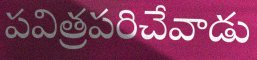
పవిత్రపరిచేవాడు